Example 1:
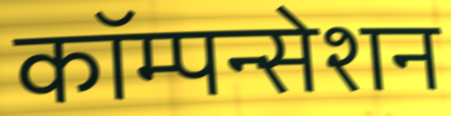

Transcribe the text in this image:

कॉम्पन्सेशन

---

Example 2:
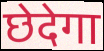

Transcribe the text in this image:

छेदेगा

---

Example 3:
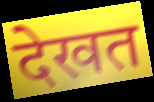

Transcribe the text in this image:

देखत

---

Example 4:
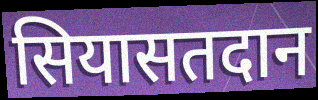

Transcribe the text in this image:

सियासतदान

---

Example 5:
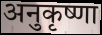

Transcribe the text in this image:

अनुकृष्णा